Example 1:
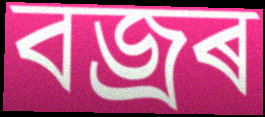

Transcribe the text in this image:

বজ্ৰৰ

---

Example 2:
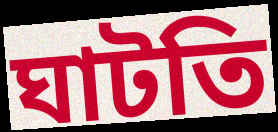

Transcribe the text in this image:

ঘাটতি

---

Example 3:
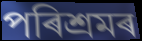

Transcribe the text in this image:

পৰিশ্ৰমৰ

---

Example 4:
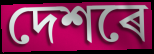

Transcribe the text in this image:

দেশৰে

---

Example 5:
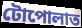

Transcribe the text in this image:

টোপোলাত